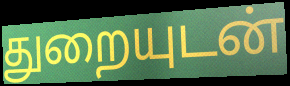
துறையுடன்